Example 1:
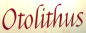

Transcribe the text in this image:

Otolithus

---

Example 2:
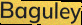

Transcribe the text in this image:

Baguley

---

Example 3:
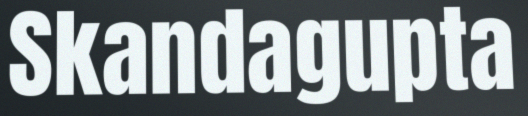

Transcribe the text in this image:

Skandagupta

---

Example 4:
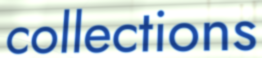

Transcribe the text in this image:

collections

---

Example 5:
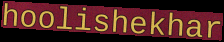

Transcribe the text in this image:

hoolishekhar